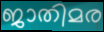
ജാതിമര